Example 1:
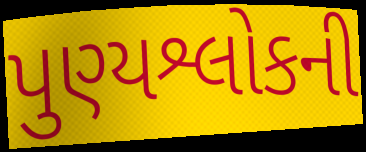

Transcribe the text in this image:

પુણ્યશ્લોકની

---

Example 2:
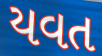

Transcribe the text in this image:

યવત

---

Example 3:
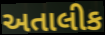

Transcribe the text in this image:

અતાલીક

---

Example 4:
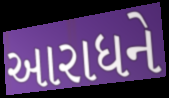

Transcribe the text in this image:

આરાધને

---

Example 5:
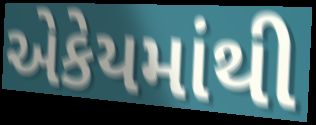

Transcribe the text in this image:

એકેયમાંથી